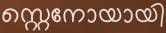
സ്റ്റെനോയായി